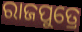
ରାଜପୁତ୍ରେ